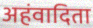
अहंवादिता